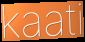
kaati